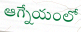
ఆగ్నేయంలో